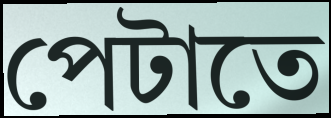
পেটাতে